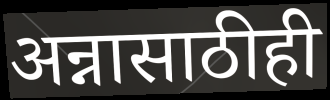
अन्नासाठीही